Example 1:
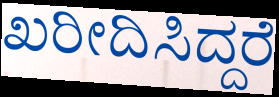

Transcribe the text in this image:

ಖರೀದಿಸಿದ್ದರೆ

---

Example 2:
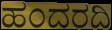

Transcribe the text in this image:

ಹಂದರದಿ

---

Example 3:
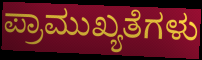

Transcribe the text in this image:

ಪ್ರಾಮುಖ್ಯತೆಗಳು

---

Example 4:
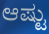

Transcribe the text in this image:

ಆಷ್ಟು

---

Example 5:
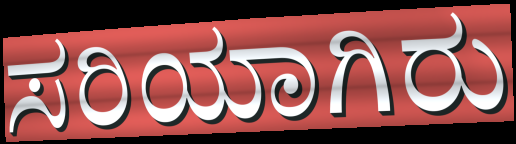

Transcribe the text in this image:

ಸರಿಯಾಗಿರು